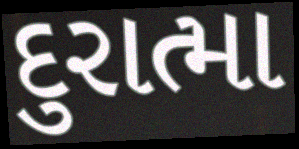
દુરાત્મા